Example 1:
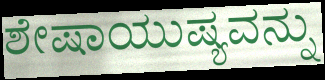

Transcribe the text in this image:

ಶೇಷಾಯುಷ್ಯವನ್ನು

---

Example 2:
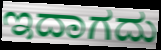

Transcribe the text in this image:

ಇದಾಗದು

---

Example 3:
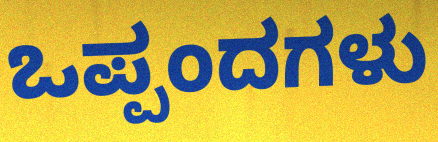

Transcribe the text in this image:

ಒಪ್ಪಂದಗಳು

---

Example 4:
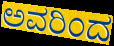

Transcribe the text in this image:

ಅವರಿಂದ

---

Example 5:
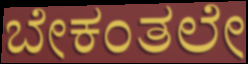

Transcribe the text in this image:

ಬೇಕಂತಲೇ